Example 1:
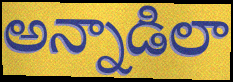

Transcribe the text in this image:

అన్నాడిలా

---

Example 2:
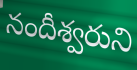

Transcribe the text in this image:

నందీశ్వరుని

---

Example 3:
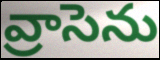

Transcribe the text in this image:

వ్రాసెను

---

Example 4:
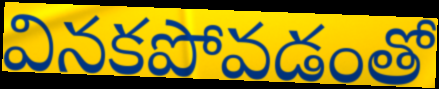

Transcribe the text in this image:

వినకపోవడంతో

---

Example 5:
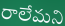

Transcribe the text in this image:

రాలేమని